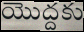
యొద్దకు